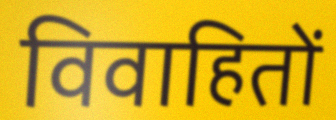
विवाहितों